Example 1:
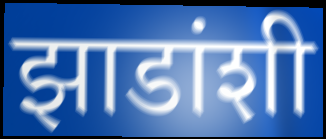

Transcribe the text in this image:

झाडांशी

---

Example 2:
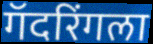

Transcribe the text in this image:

गॅदरिंगला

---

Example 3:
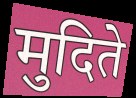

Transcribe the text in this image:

मुदिते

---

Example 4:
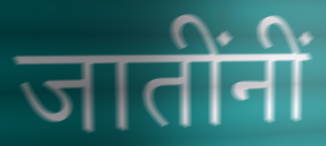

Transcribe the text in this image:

जातींनीं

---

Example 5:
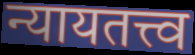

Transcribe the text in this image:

न्यायतत्त्व